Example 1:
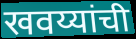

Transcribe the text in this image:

खवय्यांची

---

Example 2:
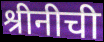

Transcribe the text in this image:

श्रीनीची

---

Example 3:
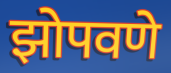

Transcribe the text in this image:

झोपवणे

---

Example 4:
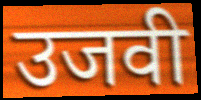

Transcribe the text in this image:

उजवी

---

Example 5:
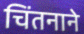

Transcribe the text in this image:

चिंतनाने